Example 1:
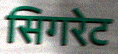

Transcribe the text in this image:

सिगरेट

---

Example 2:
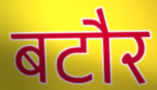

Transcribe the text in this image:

बटौर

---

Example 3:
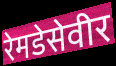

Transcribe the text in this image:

रेमडेसेवीर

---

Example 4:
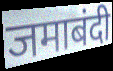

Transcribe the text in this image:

जमाबंदी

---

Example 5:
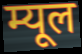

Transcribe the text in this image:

म्यूल